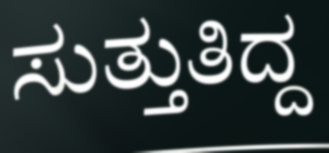
ಸುತ್ತುತಿದ್ದ